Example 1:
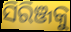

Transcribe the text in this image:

ସିରିଞ୍ଜକୁ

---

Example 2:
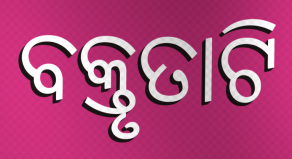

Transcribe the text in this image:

ବକ୍ତୃତାଟି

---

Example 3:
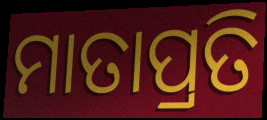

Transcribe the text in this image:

ମାତାପ୍ରତି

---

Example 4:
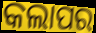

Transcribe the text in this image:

କଲାପର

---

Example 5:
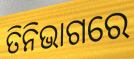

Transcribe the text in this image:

ତିନିଭାଗରେ